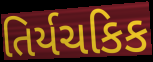
તિર્યચકિક